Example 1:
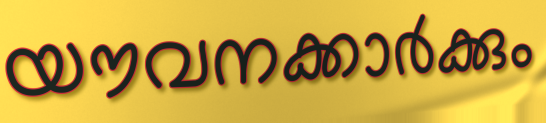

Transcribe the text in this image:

യൗവനക്കാർക്കും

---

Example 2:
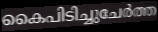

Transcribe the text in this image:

കൈപിടിച്ചുചേർത്ത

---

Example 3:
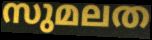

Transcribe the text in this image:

സുമലത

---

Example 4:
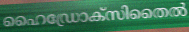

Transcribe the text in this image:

ഹൈഡ്രോക്സിതൈൽ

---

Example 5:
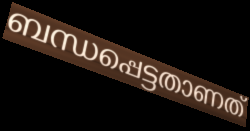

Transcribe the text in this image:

ബന്ധപ്പെട്ടതാണത്